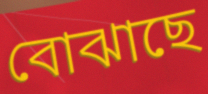
বোঝাছে